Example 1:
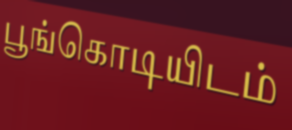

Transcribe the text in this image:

பூங்கொடியிடம்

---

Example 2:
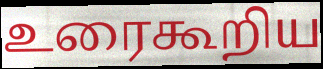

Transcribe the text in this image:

உரைகூறிய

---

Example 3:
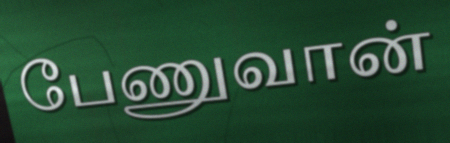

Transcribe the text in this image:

பேணுவான்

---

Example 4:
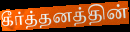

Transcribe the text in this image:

கீர்த்தனத்தின்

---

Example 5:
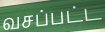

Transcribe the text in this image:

வசப்பட்ட